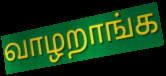
வாழறாங்க